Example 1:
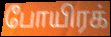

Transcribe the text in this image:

போயிரக்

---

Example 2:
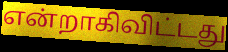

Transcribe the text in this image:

என்றாகிவிட்டது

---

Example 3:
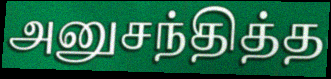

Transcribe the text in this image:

அனுசந்தித்த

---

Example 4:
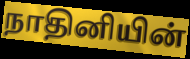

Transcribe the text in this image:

நாதினியின்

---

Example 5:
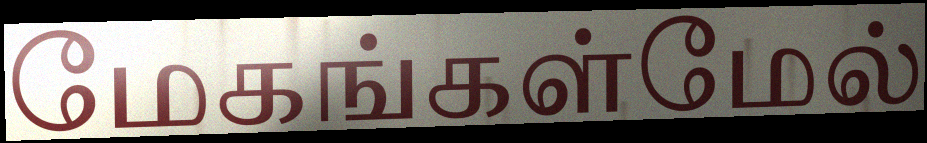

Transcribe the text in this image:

மேகங்கள்மேல்